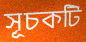
সূচকটি